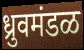
ध्रुवमंडळ